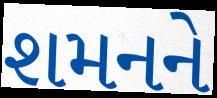
શમનને